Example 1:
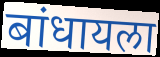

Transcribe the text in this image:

बांधायला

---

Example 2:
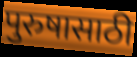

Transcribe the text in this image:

पुरुषासाठी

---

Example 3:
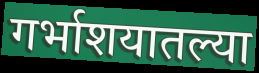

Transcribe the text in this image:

गर्भाशयातल्या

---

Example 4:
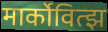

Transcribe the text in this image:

मार्कोवित्झ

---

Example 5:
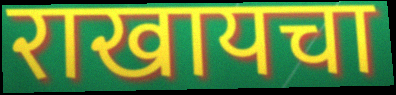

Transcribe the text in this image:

राखायचा